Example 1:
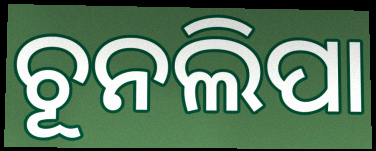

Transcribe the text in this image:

ଚୂନଲିପା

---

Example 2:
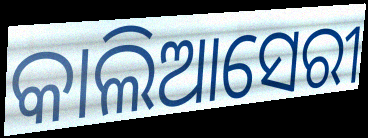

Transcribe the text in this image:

କାଲିଆସେରୀ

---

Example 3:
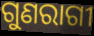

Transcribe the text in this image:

ଗୁଣରାଗୀ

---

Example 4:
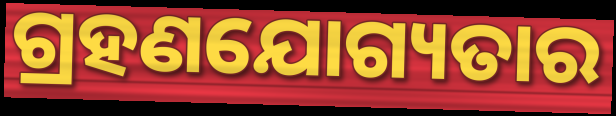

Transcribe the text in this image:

ଗ୍ରହଣଯୋଗ୍ୟତାର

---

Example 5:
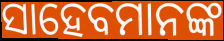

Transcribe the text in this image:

ସାହେବମାନଙ୍କ